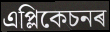
এপ্লিকেচনৰ